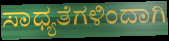
ಸಾಧ್ಯತೆಗಳಿಂದಾಗಿ